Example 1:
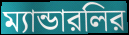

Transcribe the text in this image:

ম্যান্ডারলির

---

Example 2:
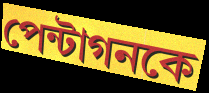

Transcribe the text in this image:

পেন্টাগনকে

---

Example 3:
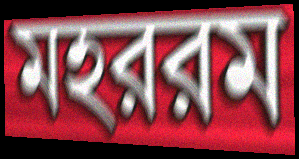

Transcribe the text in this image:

মহররম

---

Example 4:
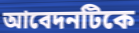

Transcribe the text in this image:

আবেদনটিকে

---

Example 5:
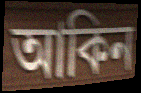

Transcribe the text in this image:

আকিন